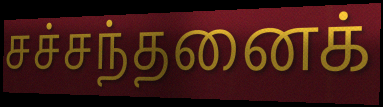
சச்சந்தனைக்